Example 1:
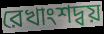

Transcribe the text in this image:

রেখাংশদ্বয়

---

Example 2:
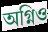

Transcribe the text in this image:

অগ্নিও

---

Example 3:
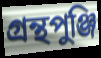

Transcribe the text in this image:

গ্রন্থপুঞ্জি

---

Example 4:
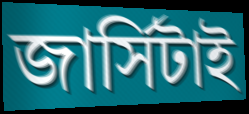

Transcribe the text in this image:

জার্সিটাই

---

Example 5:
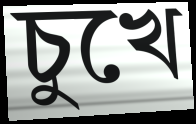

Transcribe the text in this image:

চুখে